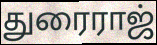
துரைராஜ்